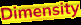
Dimensity